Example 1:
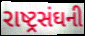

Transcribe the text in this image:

રાષ્ટ્રસંઘની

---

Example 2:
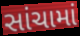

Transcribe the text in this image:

સાંચામાં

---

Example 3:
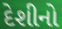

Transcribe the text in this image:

દેશીનો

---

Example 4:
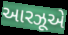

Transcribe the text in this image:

આરઝૂએ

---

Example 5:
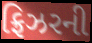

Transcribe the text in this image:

ફ્રિઝરની